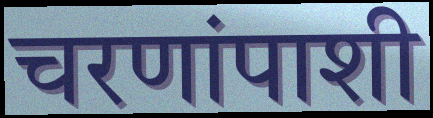
चरणांपाशी